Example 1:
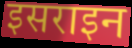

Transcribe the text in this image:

इसराइन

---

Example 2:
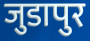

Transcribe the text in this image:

जुडापुर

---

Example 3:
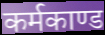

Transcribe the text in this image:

कर्मकाण्ड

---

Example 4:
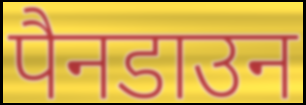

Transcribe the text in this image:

पैनडाउन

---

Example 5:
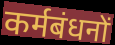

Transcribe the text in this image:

कर्मबंधनों